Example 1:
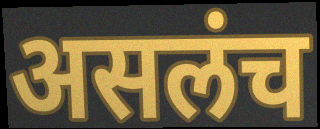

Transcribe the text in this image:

असलंच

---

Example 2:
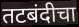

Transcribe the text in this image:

तटबंदीचा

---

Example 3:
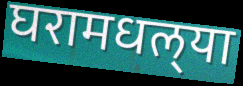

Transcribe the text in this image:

घरामधल्या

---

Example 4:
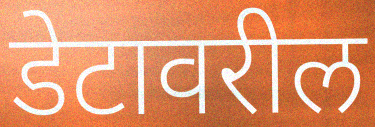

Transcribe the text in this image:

डेटावरील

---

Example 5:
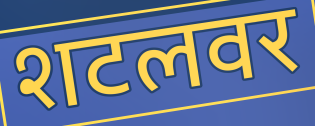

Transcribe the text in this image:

शटलवर